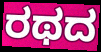
ರಥದ